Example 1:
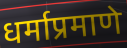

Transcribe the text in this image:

धर्माप्रमाणे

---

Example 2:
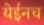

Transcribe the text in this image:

येईनच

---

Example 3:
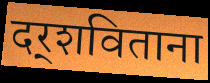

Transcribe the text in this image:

दर्शविताना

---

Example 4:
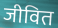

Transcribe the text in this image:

जीवित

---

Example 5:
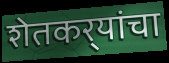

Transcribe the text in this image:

शेतकर्‍यांचा